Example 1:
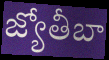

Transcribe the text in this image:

జ్యోతీబా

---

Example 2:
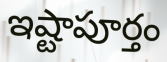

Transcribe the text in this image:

ఇష్టాపూర్తం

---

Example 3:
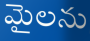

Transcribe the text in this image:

మైలను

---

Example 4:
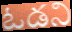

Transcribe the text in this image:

ఓడని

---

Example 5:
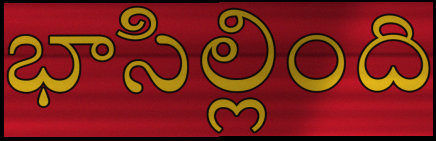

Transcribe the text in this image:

భాసిల్లింది